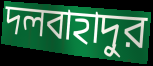
দলবাহাদুর